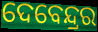
ଦେବେନ୍ଦ୍ରର